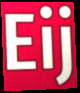
Eij